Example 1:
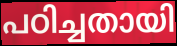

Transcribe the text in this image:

പഠിച്ചതായി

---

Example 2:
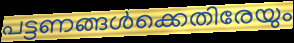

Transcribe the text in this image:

പട്ടണങ്ങൾക്കെതിരേയും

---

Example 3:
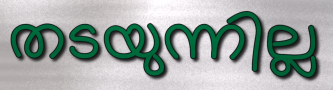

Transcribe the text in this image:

തടയുന്നില്ല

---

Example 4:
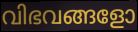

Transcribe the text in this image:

വിഭവങ്ങളോ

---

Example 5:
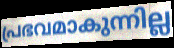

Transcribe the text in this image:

പ്രഭവമാകുന്നില്ല